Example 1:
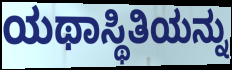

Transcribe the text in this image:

ಯಥಾಸ್ಥಿತಿಯನ್ನು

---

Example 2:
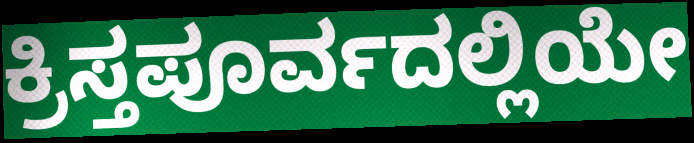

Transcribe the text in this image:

ಕ್ರಿಸ್ತಪೂರ್ವದಲ್ಲಿಯೇ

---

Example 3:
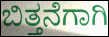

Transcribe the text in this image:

ಬಿತ್ತನೆಗಾಗಿ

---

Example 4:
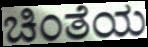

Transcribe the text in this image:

ಚಿಂತೆಯ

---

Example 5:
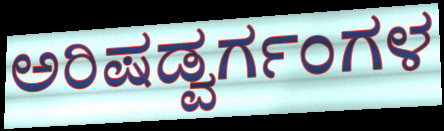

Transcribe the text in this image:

ಅರಿಷಡ್ವರ್ಗಂಗಳ